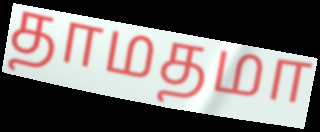
தாமதமா